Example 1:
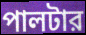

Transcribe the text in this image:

পালটার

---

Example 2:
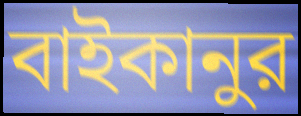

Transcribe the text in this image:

বাইকানুর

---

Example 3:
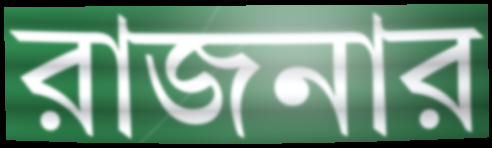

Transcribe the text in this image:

রাজনার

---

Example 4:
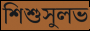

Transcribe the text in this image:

শিশুসুলভ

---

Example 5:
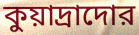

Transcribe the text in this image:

কুয়াদ্রাদোর